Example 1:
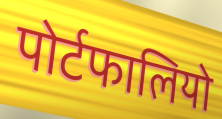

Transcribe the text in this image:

पोर्टफालियो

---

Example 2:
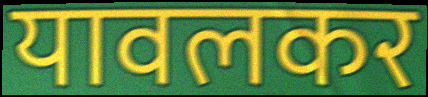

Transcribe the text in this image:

यावलकर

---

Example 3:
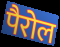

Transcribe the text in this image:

पैरोल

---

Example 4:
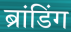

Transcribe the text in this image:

ब्रांडिंग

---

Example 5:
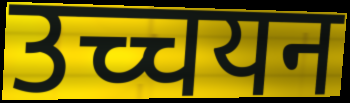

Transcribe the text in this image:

उच्चयन